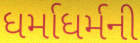
ધર્માધર્મની